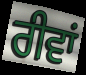
ਰੀਵਾਂ